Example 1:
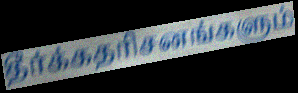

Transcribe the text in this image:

தீர்க்கதரிசனங்களும்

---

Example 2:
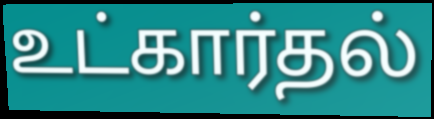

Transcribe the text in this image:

உட்கார்தல்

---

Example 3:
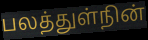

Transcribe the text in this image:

பலத்துள்நின்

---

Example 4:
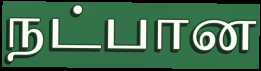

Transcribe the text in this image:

நட்பான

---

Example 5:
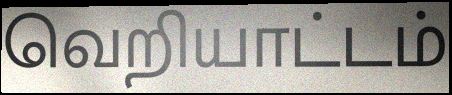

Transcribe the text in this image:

வெறியாட்டம்